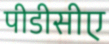
पीडीसीए